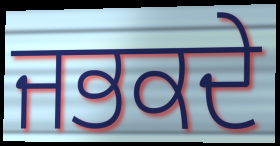
ਜਭਕਦੇ